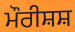
ਮੌਰੀਸ਼ਸ਼